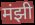
मंझी